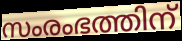
സംരംഭത്തിന്